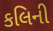
કલિની